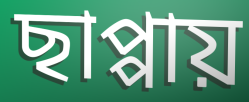
ছাপ্পায়